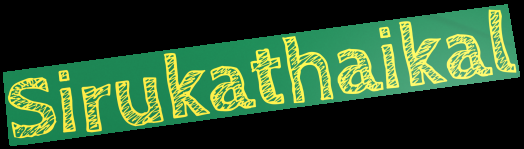
Sirukathaikal